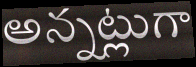
అన్నట్లుగా